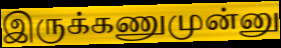
இருக்கணுமுன்னு